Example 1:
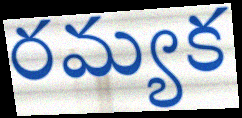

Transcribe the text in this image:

రమ్యక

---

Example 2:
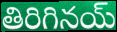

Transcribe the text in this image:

తిరిగినయ్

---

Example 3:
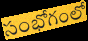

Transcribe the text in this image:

సంభోగంలో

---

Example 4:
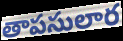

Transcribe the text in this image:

తాపసులార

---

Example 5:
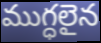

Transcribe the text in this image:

ముగ్ధలైన